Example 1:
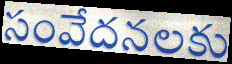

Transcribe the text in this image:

సంవేదనలకు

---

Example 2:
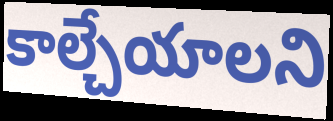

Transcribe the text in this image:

కాల్చేయాలని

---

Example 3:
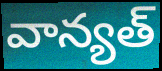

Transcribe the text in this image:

వాన్యత్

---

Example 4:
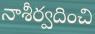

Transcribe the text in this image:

నాశీర్వదించి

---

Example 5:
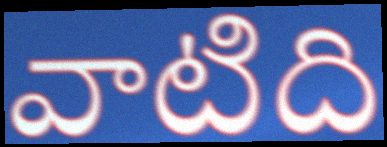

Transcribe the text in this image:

వాటిది